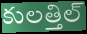
కులత్తిల్